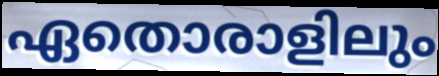
ഏതൊരാളിലും